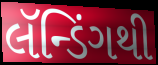
લૅન્ડિંગથી